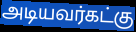
அடியவர்கட்கு